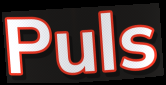
Puls